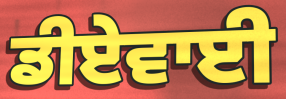
ਡੀਏਵਾਈ